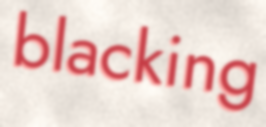
blacking